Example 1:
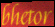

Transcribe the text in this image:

bhetor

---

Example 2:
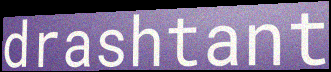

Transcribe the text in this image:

drashtant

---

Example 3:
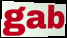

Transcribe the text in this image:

gab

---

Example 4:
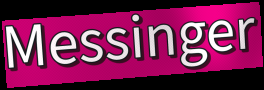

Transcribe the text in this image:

Messinger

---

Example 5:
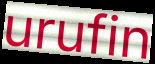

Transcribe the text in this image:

urufin